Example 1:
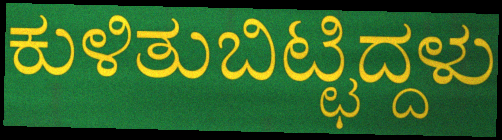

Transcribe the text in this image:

ಕುಳಿತುಬಿಟ್ಟಿದ್ದಳು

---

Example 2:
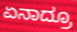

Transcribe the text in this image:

ಏನಾದ್ರೂ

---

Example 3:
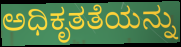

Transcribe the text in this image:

ಅಧಿಕೃತತೆಯನ್ನು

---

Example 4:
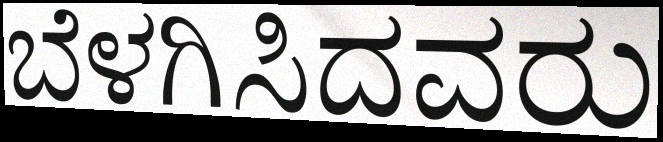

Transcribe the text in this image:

ಬೆಳಗಿಸಿದವರು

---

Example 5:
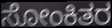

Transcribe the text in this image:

ಸೋಂಕಿತರ